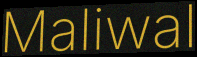
Maliwal